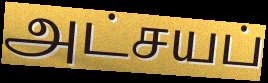
அட்சயப்